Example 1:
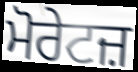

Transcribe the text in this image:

ਮੋਰੇਟਜ਼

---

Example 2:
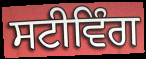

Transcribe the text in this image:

ਸਟੀਵਿੰਗ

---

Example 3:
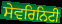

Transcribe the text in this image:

ਸੇਵਰਿਨਿਟੀ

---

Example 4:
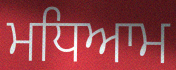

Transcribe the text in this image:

ਮਧਿਆਮ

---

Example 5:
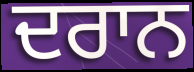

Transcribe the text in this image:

ਦਰਾਨ